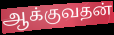
ஆக்குவதன்